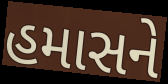
હમાસને